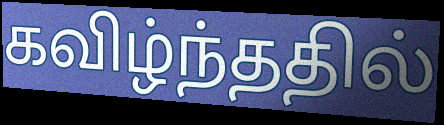
கவிழ்ந்ததில்